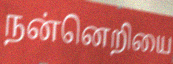
நன்னெறியை